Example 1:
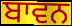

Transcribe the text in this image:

ਬਾਵਨ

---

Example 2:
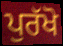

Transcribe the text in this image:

ਪੁਰੱਖੋ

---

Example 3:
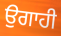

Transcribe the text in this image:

ਉਗਾਹੀ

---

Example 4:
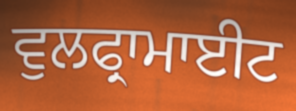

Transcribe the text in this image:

ਵੁਲਫ੍ਰਾਮਾਈਟ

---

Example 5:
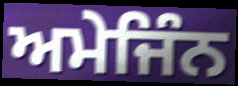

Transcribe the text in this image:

ਅਮੇਜਿੰਨ